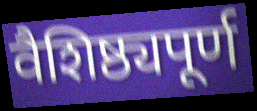
वैशिष्ठ्यपूर्ण